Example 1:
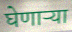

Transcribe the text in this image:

घेणाऱ्या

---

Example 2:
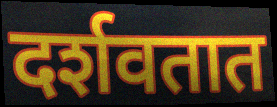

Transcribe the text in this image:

दर्शवतात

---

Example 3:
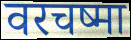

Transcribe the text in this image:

वरचष्मा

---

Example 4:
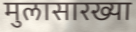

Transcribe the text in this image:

मुलासारख्या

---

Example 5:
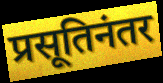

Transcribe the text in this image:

प्रसूतिनंतर